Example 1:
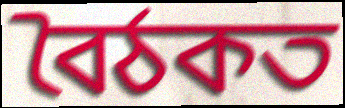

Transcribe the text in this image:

বৈঠকত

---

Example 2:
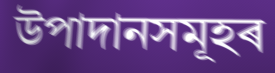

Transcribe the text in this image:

উপাদানসমূহৰ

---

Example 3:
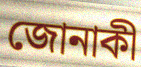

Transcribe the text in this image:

জোনাকী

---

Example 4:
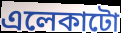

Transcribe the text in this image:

এলেকাটো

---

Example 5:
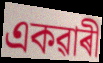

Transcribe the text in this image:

একৱাৰী